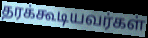
தரக்கூடியவர்கள்